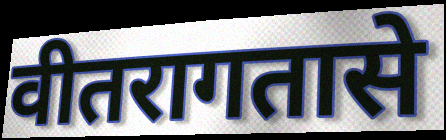
वीतरागतासे